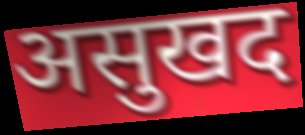
असुखद